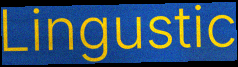
Lingustic